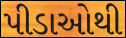
પીડાઓથી